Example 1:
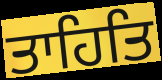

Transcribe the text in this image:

ਤਾਹਿਤਿ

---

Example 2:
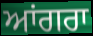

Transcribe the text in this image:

ਆਂਗਰਾ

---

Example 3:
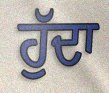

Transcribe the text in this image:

ਹੁੱਦਾ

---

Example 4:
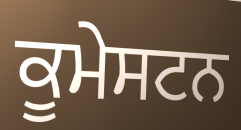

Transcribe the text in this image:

ਕੂਮੇਸਟਨ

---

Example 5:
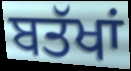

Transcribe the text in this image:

ਬਤੱਖਾਂ